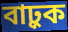
বাঢ়ুক